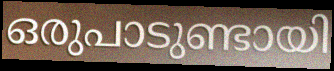
ഒരുപാടുണ്ടായി